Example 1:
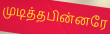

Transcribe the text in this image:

முடித்தபின்னரே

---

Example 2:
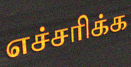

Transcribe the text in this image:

எச்சரிக்க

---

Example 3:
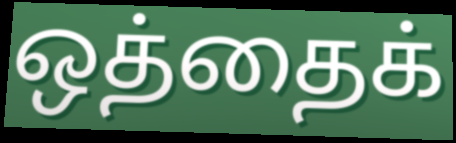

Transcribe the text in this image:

ஒத்தைக்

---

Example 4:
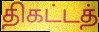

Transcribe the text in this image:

திகட்டத்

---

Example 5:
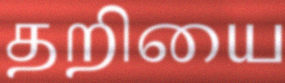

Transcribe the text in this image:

தறியை